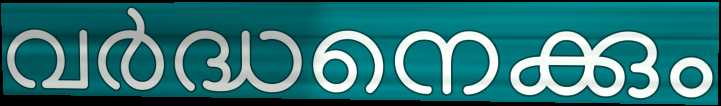
വർദ്ധനെക്കും